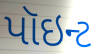
પૉઇન્ટ